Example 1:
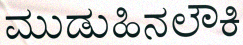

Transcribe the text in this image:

ಮುಡುಹಿನಲೌಕಿ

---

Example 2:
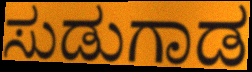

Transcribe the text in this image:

ಸುಡುಗಾಡ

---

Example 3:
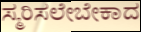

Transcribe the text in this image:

ಸ್ಮರಿಸಲೇಬೇಕಾದ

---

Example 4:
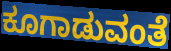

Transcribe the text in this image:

ಕೂಗಾಡುವಂತೆ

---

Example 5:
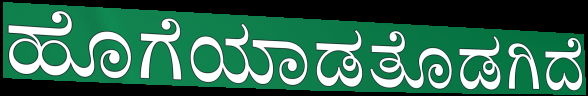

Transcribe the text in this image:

ಹೊಗೆಯಾಡತೊಡಗಿದೆ